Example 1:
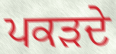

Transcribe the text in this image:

ਪਕੜਦੇ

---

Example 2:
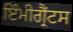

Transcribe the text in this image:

ਇੰਮੀਗ੍ਰੈਂਟਸ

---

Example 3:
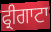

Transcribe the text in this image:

ਫ੍ਰੀਗਾਟਾ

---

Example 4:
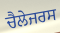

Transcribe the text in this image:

ਚੈਲੇਜਰਸ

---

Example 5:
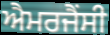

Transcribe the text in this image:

ਐਮਰਜੈਂਸੀ